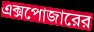
এক্সপোজারের